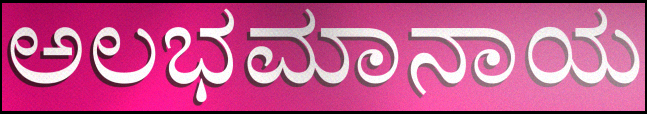
ಅಲಭಮಾನಾಯ